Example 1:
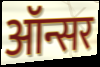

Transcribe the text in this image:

ऑन्सर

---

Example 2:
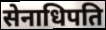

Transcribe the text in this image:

सेनाधिपति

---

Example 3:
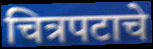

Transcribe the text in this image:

चित्रपटाचे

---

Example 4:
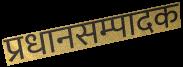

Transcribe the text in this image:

प्रधानसम्पादक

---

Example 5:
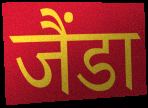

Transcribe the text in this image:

जैंडा